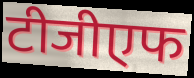
टीजीएफ